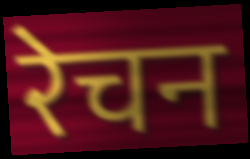
रेचन